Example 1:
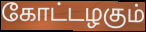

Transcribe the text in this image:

கோட்டழகும்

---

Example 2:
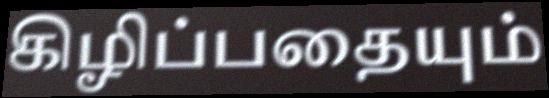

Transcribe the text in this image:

கிழிப்பதையும்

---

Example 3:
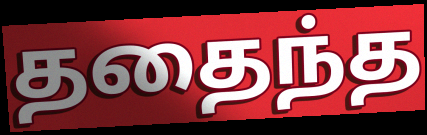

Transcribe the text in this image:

ததைந்த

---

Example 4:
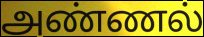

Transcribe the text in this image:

அண்ணல்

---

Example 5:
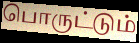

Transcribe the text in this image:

பொருட்டும்